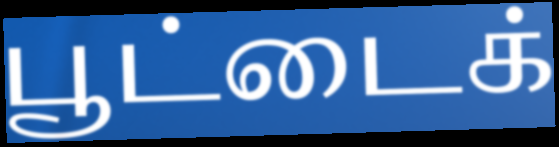
பூட்டைக்